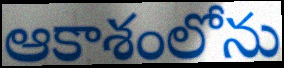
ఆకాశంలోను